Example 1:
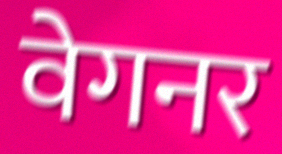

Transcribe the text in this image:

वेगनर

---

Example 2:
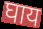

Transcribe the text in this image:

घाय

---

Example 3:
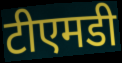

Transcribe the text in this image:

टीएमडी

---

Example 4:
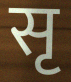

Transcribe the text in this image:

सृ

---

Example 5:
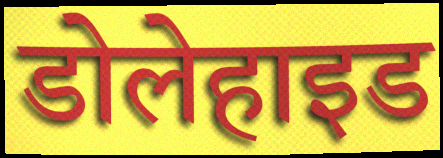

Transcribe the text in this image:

डोलेहाइड